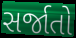
સર્જાતો